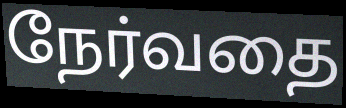
நேர்வதை